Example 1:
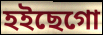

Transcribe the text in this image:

হইছেগো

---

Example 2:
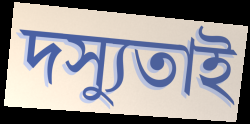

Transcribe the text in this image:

দস্যুতাই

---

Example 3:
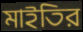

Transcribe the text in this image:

মাইতির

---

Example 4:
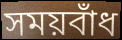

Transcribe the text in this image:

সময়বাঁধ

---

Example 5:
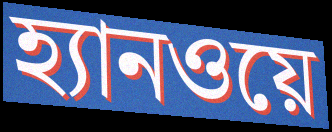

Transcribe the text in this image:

হ্যানওয়ে